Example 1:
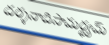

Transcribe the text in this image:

దర్శనాదిసామర్థ్యమ్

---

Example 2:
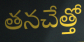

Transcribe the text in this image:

తనచేత్తో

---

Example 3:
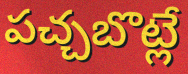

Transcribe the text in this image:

పచ్చబొట్లే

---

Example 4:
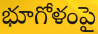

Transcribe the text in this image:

భూగోళంపై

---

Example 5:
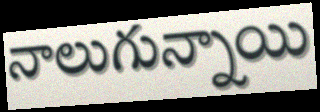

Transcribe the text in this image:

నాలుగున్నాయి